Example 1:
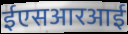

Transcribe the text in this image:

ईएसआरआई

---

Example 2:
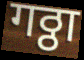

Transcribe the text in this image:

गठ्ठा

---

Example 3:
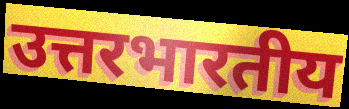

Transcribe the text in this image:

उत्तरभारतीय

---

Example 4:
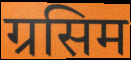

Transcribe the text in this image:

ग्रसिम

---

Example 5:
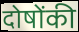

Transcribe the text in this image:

दोषोंकी